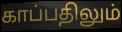
காப்பதிலும்